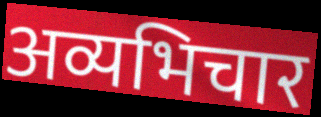
अव्यभिचार